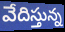
వేదిస్తున్న